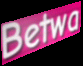
Betwa